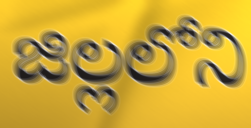
జిల్లలోని